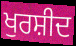
ਖੁਰਸ਼ੀਦ